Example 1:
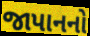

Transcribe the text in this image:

જાપાનનો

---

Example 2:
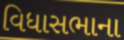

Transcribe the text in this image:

વિધાસભાના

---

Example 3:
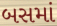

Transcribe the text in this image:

બસમાં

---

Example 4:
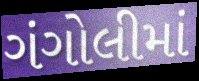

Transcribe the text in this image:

ગંગોલીમાં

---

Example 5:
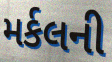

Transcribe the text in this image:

મર્કલની